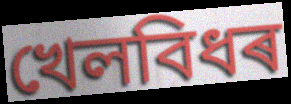
খেলবিধৰ